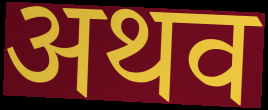
अथव